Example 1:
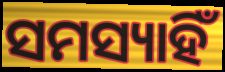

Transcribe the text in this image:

ସମସ୍ୟାହିଁ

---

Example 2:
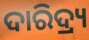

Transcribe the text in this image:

ଦାରିଦ୍ର୍ୟ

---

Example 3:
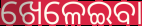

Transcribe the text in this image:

ଖେଳେଇବା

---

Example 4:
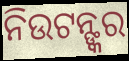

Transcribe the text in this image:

ନିଉଟନ୍ଙ୍କର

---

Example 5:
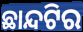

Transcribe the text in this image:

ଛାନ୍ଦଟିର